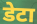
डेटा